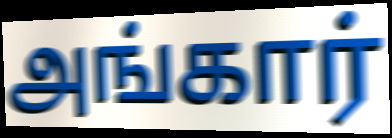
அங்கார்